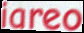
iareo